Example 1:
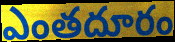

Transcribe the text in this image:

ఎంతదూరం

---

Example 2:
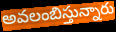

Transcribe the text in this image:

అవలంబిస్తున్నారు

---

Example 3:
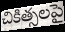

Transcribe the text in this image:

చికిత్సలపై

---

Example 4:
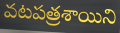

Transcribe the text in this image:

వటపత్రశాయిని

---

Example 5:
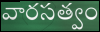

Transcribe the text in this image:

వారసత్వం